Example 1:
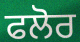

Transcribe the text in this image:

ਫਲੋਰ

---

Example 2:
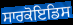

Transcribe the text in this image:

ਸਾਰਕੋਇਡਿਸ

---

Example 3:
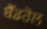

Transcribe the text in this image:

ਬੈੱਡਰੋਲ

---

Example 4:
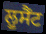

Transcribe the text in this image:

ਲੂਸੈਂਟ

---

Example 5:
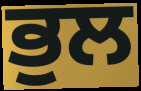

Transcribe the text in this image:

ਭੁਲ